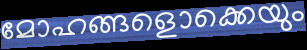
മോഹങ്ങളൊക്കെയും